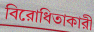
বিরোধিতাকারী